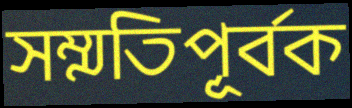
সম্মতিপূর্বক